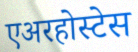
एअरहोस्टेस